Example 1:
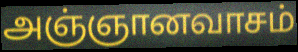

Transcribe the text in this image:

அஞ்ஞானவாசம்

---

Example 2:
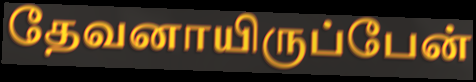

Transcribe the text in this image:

தேவனாயிருப்பேன்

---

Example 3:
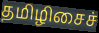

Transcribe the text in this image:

தமிழிசைச்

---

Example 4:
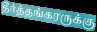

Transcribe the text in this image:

தீர்த்தங்கரருக்கு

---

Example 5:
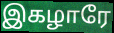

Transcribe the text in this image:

இகழாரே